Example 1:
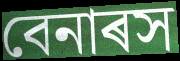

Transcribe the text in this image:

বেনাৰস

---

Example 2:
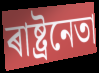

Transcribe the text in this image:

ৰাষ্ট্ৰনেতা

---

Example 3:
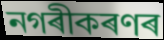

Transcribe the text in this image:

নগৰীকৰণৰ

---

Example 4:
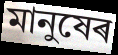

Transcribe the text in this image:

মানুষেৰ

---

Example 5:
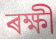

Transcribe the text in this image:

ৰক্ষী